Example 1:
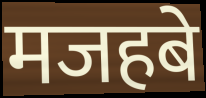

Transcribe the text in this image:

मजहबे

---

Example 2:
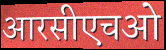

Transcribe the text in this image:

आरसीएचओ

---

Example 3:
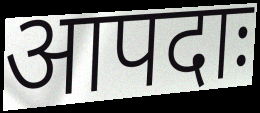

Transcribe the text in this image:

आपदाः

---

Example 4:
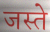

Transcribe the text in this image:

जस्ते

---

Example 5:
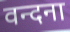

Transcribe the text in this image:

वन्दना